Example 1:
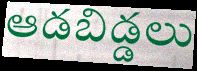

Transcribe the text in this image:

ఆడబిడ్డలు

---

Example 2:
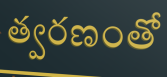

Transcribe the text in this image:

త్వరణంతో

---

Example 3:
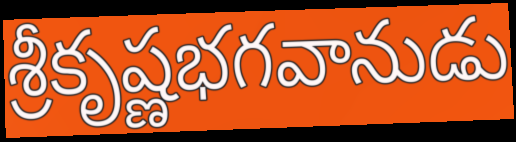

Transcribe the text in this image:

శ్రీకృష్ణభగవానుడు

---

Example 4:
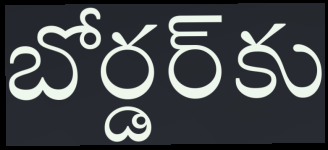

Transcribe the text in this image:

బోర్డర్‌కు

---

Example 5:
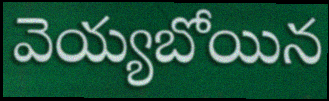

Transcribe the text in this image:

వెయ్యబోయిన